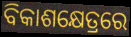
ବିକାଶକ୍ଷେତ୍ରରେ